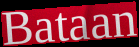
Bataan